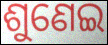
ଶୁଣେଇ